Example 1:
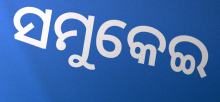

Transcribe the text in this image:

ସମୁକେଇ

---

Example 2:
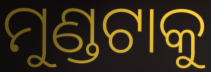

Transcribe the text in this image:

ମୁଣ୍ଡଟାକୁ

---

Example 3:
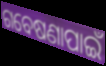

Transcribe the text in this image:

ଗବେଷଣାପାଇଁ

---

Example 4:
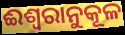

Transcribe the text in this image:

ଈଶ୍ଵରାନୁକୂଳ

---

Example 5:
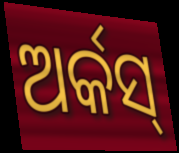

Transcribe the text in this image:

ଅର୍କସ୍